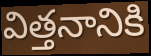
విత్తనానికి